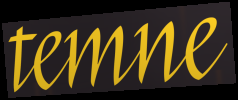
temne